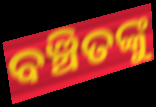
ବଞ୍ଚିତଙ୍କୁ